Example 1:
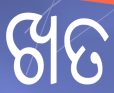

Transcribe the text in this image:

ଖତ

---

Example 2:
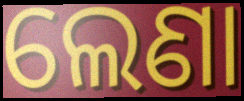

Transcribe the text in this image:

ଲେଣା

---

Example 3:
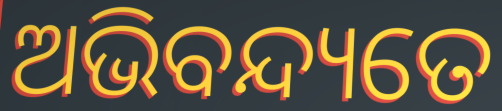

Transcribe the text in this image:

ଅଭିବନ୍ଦ୍ୟତେ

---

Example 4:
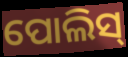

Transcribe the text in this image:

ପୋଲିସ୍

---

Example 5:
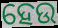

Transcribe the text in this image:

ହେଉ